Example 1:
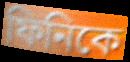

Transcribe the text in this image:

ফিনিকে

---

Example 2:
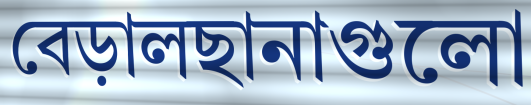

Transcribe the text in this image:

বেড়ালছানাগুলো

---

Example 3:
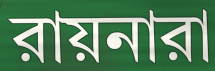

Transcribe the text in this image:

রায়নারা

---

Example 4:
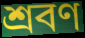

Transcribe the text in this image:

শ্রবণ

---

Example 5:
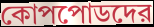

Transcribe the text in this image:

কোপপোডদের